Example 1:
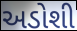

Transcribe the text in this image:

અડોશી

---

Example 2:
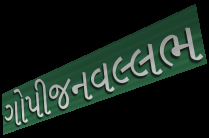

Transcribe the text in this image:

ગોપીજનવલ્લભ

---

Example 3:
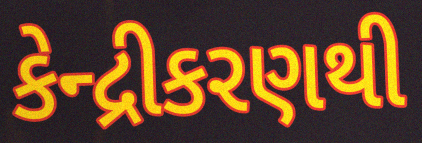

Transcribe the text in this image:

કેન્દ્રીકરણથી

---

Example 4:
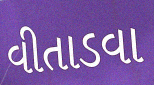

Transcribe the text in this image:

વીતાડવા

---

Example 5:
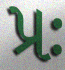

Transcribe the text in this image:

પ્રઃ